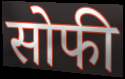
सोफी